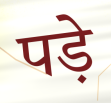
पड़े